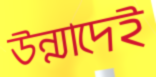
উন্মাদেই